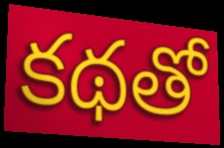
కథతో